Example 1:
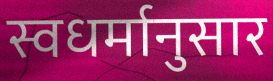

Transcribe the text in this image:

स्वधर्मानुसार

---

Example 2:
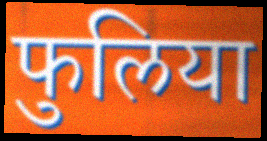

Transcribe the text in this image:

फुलिया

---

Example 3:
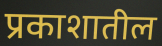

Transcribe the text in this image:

प्रकाशातील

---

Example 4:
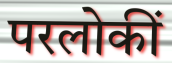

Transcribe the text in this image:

परलोकीं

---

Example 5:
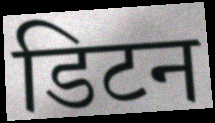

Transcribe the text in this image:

डिटन